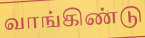
வாங்கிண்டு